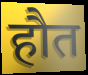
हौत